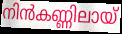
നിൻകണ്ണിലായ്